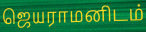
ஜெயராமனிடம்